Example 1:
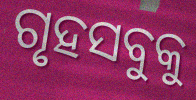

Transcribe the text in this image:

ଗୃହସବୁକୁ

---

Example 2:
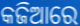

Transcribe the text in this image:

କଜିଆରେ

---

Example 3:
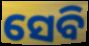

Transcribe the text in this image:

ସେବି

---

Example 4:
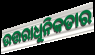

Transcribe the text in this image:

ଉତ୍ତରାଧୁନିକତାର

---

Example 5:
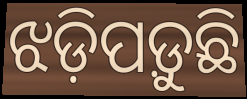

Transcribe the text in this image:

ଝଡ଼ିପଡ଼ୁଛି